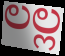
లల్ల